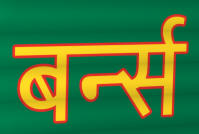
बर्न्स